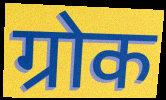
ग्रोक